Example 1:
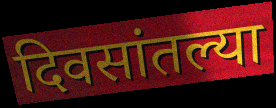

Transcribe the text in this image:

दिवसांतल्या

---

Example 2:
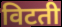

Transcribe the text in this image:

विटती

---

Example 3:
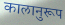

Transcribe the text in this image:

कालानुरूप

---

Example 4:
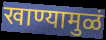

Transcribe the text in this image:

खाण्यामुळं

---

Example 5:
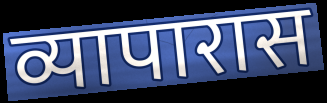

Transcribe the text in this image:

व्यापारास